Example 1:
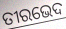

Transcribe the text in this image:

ତୀରଭେଦ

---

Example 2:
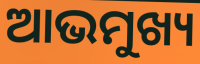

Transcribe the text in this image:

ଆଭମୁଖ୍ୟ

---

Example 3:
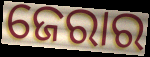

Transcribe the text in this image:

ଜେରାର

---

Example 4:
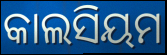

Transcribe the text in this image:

କାଲସିୟମ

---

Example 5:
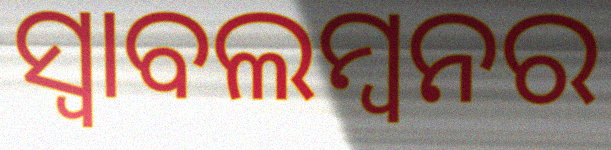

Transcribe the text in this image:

ସ୍ବାବଲମ୍ବନର